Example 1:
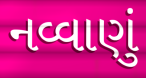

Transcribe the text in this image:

નવ્વાણું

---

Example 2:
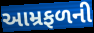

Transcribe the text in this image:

આમ્રફળની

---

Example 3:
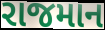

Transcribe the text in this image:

રાજમાન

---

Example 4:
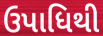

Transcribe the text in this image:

ઉપાધિથી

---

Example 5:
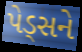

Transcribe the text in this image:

પેડ્સને